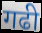
गढी